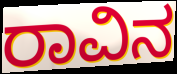
ರಾವಿನ